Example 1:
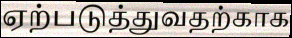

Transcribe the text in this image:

ஏற்படுத்துவதற்காக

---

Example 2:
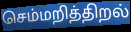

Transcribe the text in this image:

செம்மறித்திறல்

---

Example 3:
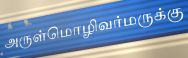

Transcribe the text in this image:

அருள்மொழிவர்மருக்கு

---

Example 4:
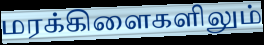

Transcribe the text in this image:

மரக்கிளைகளிலும்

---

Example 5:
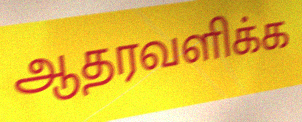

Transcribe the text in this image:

ஆதரவளிக்க